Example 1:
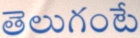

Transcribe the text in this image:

తెలుగంటే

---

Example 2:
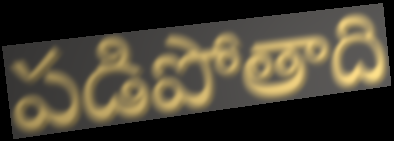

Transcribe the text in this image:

పడిపోతాది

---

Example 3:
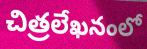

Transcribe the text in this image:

చిత్రలేఖనంలో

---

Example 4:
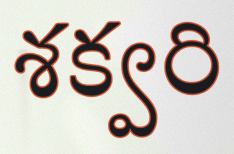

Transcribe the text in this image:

శక్వరి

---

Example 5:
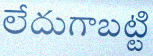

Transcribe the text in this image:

లేదుగాబట్టి